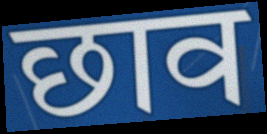
छाव